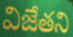
విజేతని